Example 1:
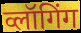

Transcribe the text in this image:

व्लॉगिंग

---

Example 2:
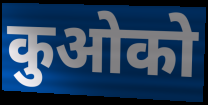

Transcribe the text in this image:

कुओको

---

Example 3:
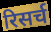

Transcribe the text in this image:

रिसर्च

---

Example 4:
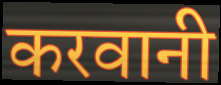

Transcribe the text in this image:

करवानी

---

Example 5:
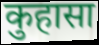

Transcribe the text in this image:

कुहासा